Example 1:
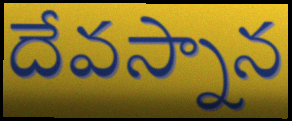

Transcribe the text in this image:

దేవస్నాన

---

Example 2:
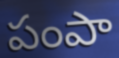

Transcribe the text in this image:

పంపా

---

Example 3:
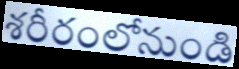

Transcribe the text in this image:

శరీరంలోనుండి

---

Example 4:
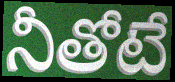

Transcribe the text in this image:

నీతోటే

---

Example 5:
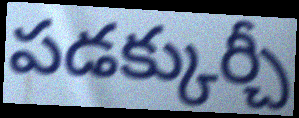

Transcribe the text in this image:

పడక్కుర్చీ